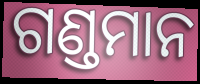
ଗଣ୍ଡମାନ